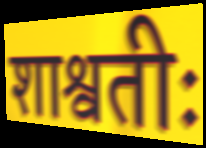
शाश्वतीः